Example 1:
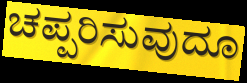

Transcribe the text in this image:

ಚಪ್ಪರಿಸುವುದೂ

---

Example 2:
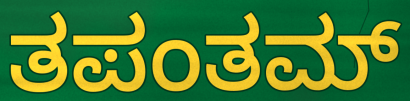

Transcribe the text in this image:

ತಪಂತಮ್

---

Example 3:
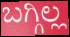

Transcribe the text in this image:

ಬಗ್ಗಿಲ್ಲ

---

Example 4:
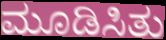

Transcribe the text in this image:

ಮೂಡಿಸಿತು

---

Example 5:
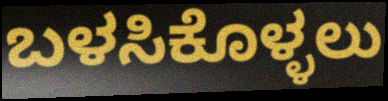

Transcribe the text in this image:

ಬಳಸಿಕೊಳ್ಳಲು